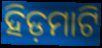
ହିଡ଼ମାଟି